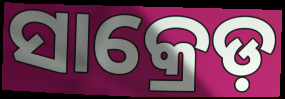
ସାକ୍ରେଡ଼